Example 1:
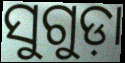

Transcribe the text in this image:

ସୁଗୁଡ଼ା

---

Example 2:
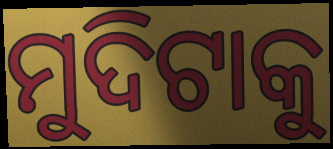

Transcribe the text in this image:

ମୁଦିଟାକୁ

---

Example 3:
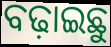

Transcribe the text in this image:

ବଢ଼ାଇଛୁ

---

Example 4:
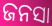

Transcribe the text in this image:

ଜନସା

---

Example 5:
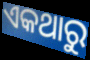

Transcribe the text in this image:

ଏକଥାରୁ